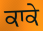
ਕਾਕੇ